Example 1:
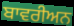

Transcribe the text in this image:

ਬਾਵਰੀਅਨ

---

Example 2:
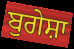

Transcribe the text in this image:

ਬੁਗੇਸ਼ਾ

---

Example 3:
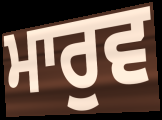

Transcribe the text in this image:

ਮਾਰੁਵ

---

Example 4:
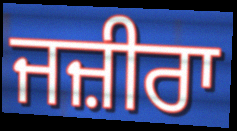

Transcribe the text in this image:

ਜਜ਼ੀਰਾ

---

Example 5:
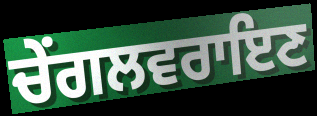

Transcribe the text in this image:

ਚੇਂਗਲਵਰਾਇਣ